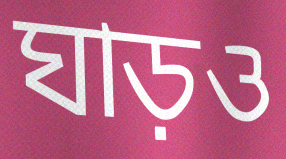
ঘাড়ও